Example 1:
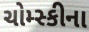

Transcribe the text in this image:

ચોમ્સ્કીના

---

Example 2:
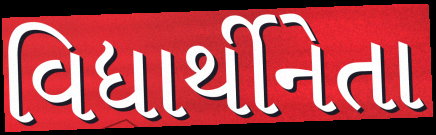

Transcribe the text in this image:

વિદ્યાર્થીનેતા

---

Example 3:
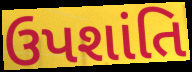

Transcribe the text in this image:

ઉપશાંતિ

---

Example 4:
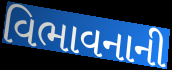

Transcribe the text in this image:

વિભાવનાની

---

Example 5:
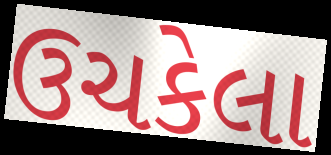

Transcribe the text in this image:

ઉચકેલા